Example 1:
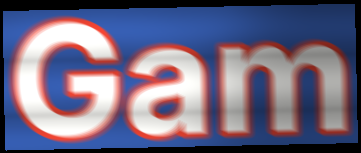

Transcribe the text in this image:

Gam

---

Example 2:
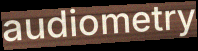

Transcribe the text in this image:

audiometry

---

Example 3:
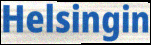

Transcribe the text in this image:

Helsingin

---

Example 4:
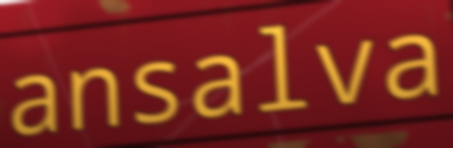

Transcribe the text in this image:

ansalva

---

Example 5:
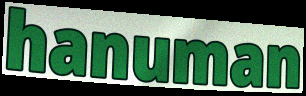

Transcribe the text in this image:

hanuman